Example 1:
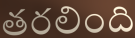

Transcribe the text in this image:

తరలింది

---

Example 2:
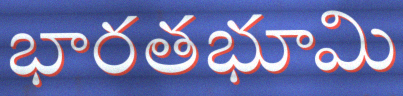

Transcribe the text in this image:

భారతభూమి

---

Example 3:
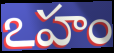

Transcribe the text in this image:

ఽహం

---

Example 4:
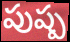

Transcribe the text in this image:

పుష్ప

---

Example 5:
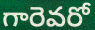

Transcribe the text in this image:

గారెవరో